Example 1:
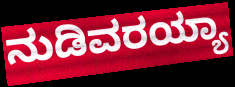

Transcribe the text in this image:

ನುಡಿವರಯ್ಯಾ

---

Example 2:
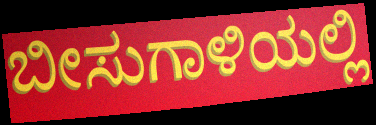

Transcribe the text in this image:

ಬೀಸುಗಾಳಿಯಲ್ಲಿ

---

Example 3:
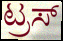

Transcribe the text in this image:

ಟ್ರಸ್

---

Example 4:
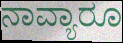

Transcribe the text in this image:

ನಾವ್ಯಾರೂ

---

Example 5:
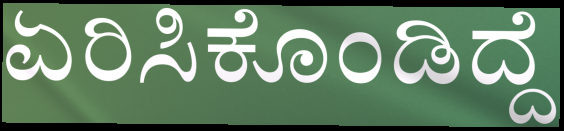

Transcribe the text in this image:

ಏರಿಸಿಕೊಂಡಿದ್ದೆ